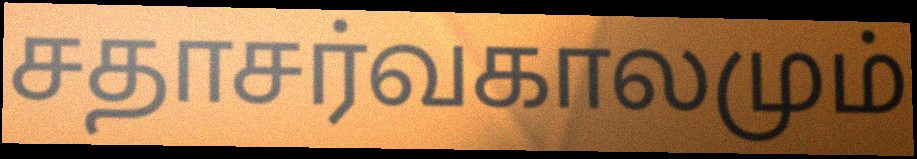
சதாசர்வகாலமும்